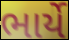
ભાર્યે